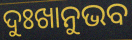
ଦୁଃଖାନୁଭବ